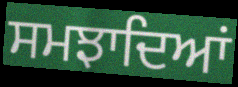
ਸਮਝਾਦਿਆਂ